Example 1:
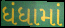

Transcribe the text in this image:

ધંધામાં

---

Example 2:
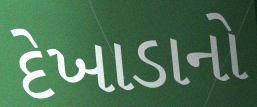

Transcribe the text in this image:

દેખાડાનો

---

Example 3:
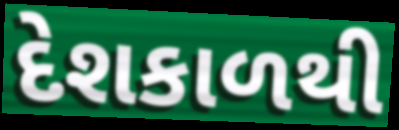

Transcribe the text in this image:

દેશકાળથી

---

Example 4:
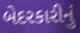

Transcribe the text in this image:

બેદરકારીનું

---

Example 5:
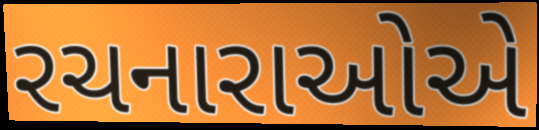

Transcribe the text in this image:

રચનારાઓએ